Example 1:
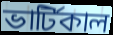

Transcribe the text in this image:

ভার্টিকাল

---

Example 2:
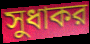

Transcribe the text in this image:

সুধাকর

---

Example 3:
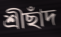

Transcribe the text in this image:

শ্রীছাঁদ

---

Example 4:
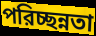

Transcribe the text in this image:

পরিচ্ছন্নতা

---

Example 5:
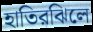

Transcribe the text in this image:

হাতিরঝিলে